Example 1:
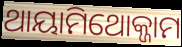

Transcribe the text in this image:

ଥାୟାମିଥୋକ୍ଜାମ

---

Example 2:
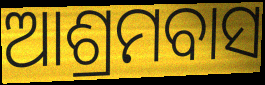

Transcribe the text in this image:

ଆଶ୍ରମବାସ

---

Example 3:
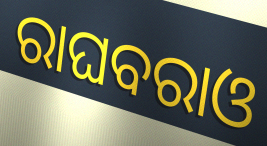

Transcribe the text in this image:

ରାଘବରାଓ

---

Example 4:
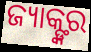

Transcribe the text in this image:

ଜ୍ୟାକ୍ଙ୍କର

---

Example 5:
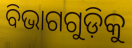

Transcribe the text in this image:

ବିଭାଗଗୁଡ଼ିକୁ